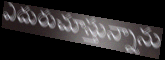
ఎదురుచూస్తున్నాను